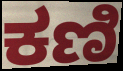
ಕಣಿ